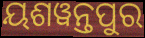
ୟଶୱନ୍ତପୁର